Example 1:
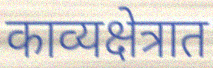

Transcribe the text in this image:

काव्यक्षेत्रात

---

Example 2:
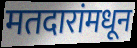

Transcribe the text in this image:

मतदारांमधून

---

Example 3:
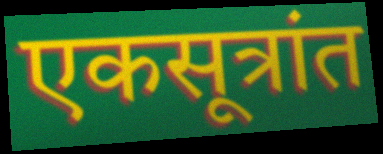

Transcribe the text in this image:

एकसूत्रांत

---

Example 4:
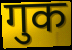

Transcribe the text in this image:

गुक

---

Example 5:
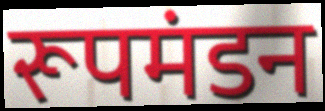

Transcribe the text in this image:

रूपमंडन